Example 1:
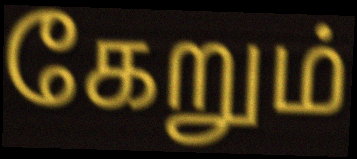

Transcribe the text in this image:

கேறும்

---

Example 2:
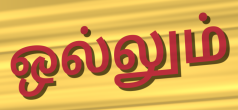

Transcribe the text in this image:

ஒல்லும்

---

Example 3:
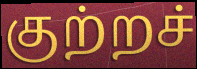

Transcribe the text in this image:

குற்றச்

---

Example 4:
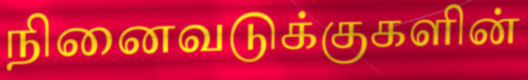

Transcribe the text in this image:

நினைவடுக்குகளின்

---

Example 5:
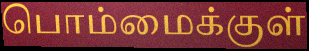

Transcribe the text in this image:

பொம்மைக்குள்